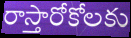
రాస్తారోకోలకు